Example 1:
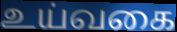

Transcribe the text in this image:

உய்வகை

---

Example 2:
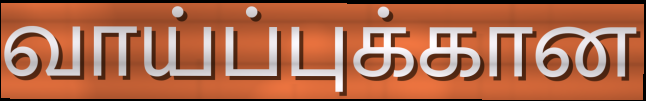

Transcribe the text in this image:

வாய்ப்புக்கான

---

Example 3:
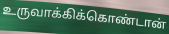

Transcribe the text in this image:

உருவாக்கிக்கொண்டான்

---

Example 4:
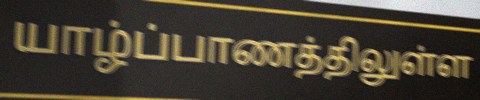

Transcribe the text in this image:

யாழ்ப்பாணத்திலுள்ள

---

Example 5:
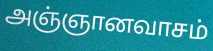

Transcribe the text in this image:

அஞ்ஞானவாசம்